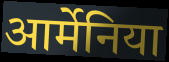
आर्मेनिया